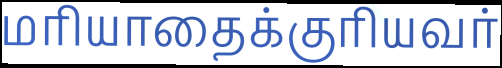
மரியாதைக்குரியவர்